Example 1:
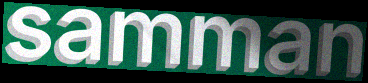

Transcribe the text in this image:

samman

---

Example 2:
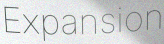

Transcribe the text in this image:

Expansion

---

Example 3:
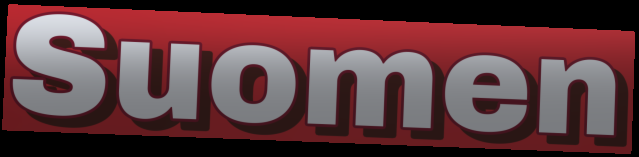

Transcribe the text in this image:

Suomen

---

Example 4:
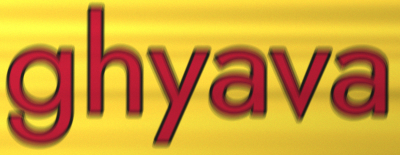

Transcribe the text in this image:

ghyava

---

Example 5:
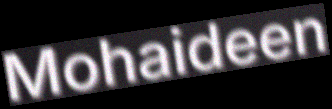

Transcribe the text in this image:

Mohaideen